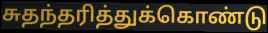
சுதந்தரித்துக்கொண்டு